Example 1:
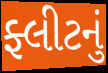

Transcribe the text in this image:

ફ્લીટનું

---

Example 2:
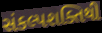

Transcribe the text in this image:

સંકલ્પશક્તિથી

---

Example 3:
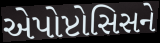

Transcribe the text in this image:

એપોપ્ટોસિસને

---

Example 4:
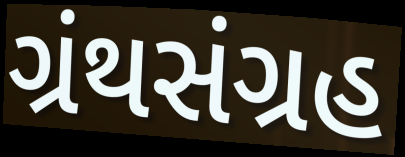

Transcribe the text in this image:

ગ્રંથસંગ્રહ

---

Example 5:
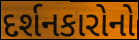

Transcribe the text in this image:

દર્શનકારોનો